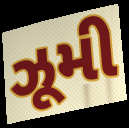
ઝૂમી